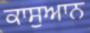
ਕਾਸੁਆਨ